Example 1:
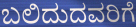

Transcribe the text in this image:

ಬಲಿದುದವರಿಗೆ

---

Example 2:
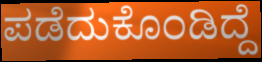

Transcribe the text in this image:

ಪಡೆದುಕೊಂಡಿದ್ದೆ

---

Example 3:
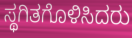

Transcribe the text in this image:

ಸ್ಥಗಿತಗೊಳಿಸಿದರು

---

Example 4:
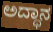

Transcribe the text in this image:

ಅದ್ಧಾನ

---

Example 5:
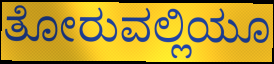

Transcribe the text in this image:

ತೋರುವಲ್ಲಿಯೂ